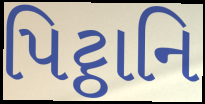
પિટ્ઠાનિ